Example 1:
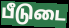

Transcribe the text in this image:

பீடுடை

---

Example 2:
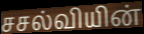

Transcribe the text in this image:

சசல்வியின்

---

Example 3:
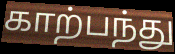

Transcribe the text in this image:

காற்பந்து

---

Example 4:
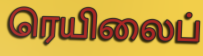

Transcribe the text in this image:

ரெயிலைப்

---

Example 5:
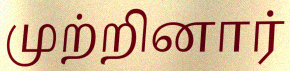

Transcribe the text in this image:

முற்றினார்